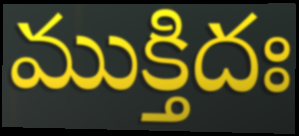
ముక్తిదః